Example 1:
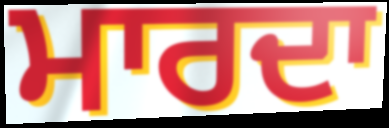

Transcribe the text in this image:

ਮਾਰਦਾ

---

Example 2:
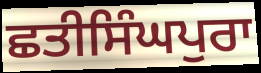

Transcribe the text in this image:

ਛਤੀਸਿੰਘਪੁਰਾ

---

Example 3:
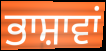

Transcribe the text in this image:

ਭਾਸ਼ਾਵਾਂ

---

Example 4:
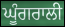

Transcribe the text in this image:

ਘੂੰਗਰਾਲੀ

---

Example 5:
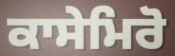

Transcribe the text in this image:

ਕਾਸੇਮਿਰੋ